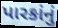
પારકાંનું